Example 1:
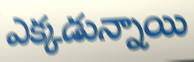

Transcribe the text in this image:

ఎక్కడున్నాయి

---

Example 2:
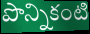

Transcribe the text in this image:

పొన్నికంటి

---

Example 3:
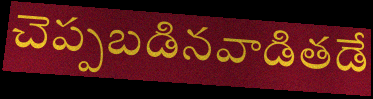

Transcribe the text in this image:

చెప్పబడినవాడితడే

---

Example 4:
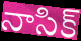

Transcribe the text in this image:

నాసిక్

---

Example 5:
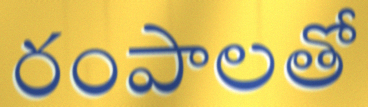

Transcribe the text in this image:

రంపాలతో